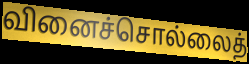
வினைச்சொல்லைத்